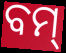
ବମ୍